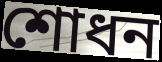
শোধন